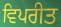
ਵਿਪਰੀਤ